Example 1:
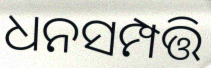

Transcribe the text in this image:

ଧନସମ୍ପତ୍ତି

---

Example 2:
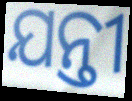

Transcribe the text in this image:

ଯନ୍ତୀ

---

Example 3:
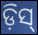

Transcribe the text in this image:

ଡ଼ିସ୍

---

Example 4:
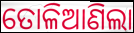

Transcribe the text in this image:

ତୋଳିଆଣିଲା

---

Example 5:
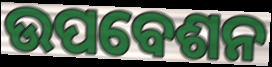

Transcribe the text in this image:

ଉପବେଶନ